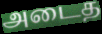
அடைத